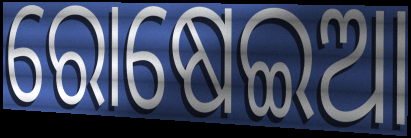
ରୋଷେଇଆ